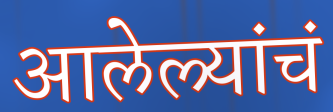
आलेल्यांचं